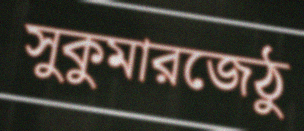
সুকুমারজেঠু